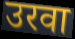
उरवा